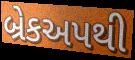
બ્રેકઅપથી